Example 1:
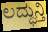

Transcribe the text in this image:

ಲದ್ಧುನ್ತಿ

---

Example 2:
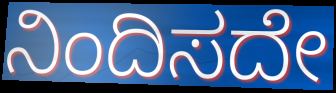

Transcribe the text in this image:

ನಿಂದಿಸದೇ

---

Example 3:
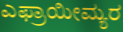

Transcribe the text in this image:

ಎಫ್ರಾಯೀಮ್ಯರ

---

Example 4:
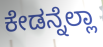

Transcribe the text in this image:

ಕೇಡನ್ನೆಲ್ಲಾ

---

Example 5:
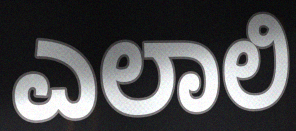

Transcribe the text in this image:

ಎಲಾಲಿ